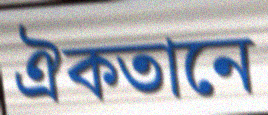
ঐকতানে